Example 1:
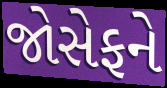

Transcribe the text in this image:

જોસેફને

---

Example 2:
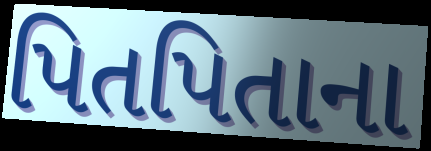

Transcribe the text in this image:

પિતપિતાના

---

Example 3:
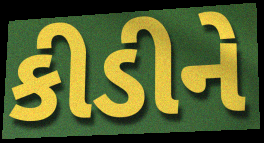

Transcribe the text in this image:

કીડીને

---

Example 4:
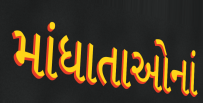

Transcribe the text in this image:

માંધાતાઓનાં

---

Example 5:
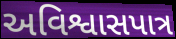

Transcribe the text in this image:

અવિશ્વાસપાત્ર